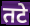
तटे